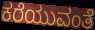
ಕರೆಯುವಂತೆ